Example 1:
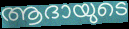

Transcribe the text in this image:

ആദായുടെ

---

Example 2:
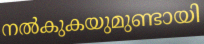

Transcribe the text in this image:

നൽകുകയുമുണ്ടായി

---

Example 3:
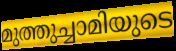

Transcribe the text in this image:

മുത്തുച്ചാമിയുടെ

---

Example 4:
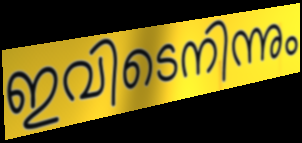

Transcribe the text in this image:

ഇവിടെനിന്നും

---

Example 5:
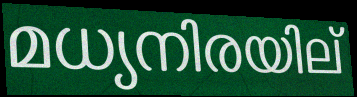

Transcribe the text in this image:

മധ്യനിരയില്